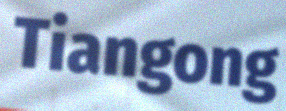
Tiangong